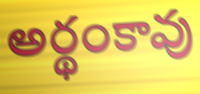
అర్థంకావు